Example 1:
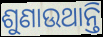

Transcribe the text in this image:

ଶୁଣାଉଥାନ୍ତି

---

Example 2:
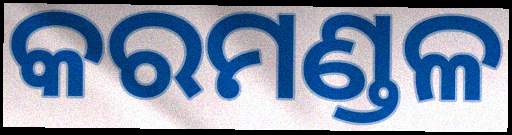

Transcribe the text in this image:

କରମଣ୍ଡଳ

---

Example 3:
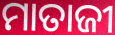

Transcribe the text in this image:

ମାତାଜୀ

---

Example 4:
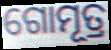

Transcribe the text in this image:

ଗୋମୂତ୍ର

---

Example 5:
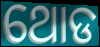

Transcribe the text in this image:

ଥୋଡ